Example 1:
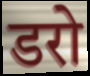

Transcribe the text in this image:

डरो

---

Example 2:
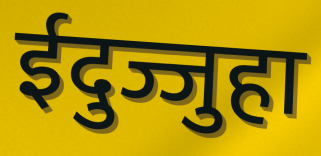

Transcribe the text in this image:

ईदुज्जुहा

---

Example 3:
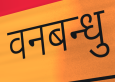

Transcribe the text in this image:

वनबन्धु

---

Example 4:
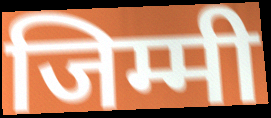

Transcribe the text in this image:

जिम्मी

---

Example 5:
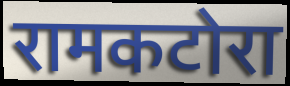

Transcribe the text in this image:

रामकटोरा